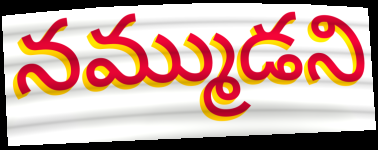
నమ్ముడని